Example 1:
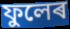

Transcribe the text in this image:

ফুলেৰ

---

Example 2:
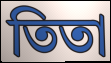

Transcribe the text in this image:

তিতা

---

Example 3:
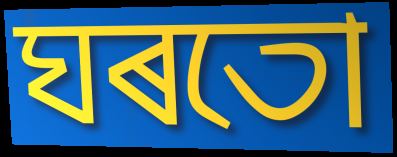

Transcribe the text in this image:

ঘৰতো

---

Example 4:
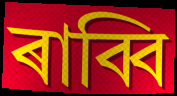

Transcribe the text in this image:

ৰাব্বি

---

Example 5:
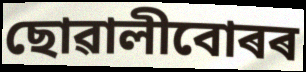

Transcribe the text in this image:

ছোৱালীবোৰৰ